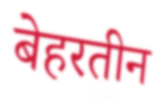
बेहरतीन